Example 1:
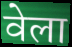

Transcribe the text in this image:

वेला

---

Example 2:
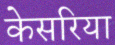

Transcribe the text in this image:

केसरिया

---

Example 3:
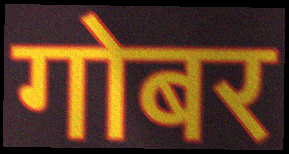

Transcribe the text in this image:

गोबर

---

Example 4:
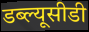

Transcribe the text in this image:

डब्ल्यूसीडी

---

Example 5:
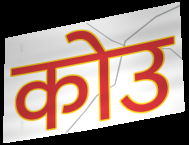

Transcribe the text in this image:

कोउ